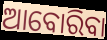
ଆବୋରିବା